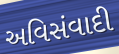
અવિસંવાદી